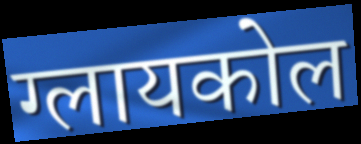
ग्लायकोल